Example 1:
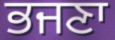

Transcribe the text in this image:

ਭਜਣਾ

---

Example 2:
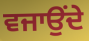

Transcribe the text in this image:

ਵਜਾਉਂਦੇ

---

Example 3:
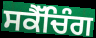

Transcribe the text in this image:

ਸਕੈੱਚਿੰਗ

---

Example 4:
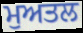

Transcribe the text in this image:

ਮੁਅਤਲ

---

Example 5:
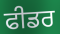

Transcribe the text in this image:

ਫੀਡਰ